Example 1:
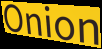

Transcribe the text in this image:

Onion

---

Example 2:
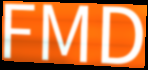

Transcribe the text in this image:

FMD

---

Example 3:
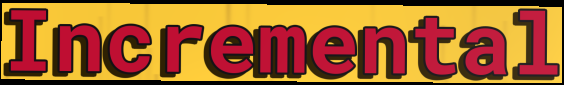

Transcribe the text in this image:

Incremental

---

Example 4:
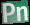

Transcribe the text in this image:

Pn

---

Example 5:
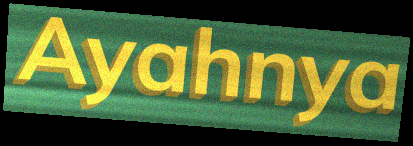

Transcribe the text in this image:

Ayahnya